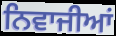
ਨਿਵਾਜੀਆਂ